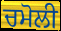
ਚਮੋਲੀ